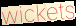
wickets